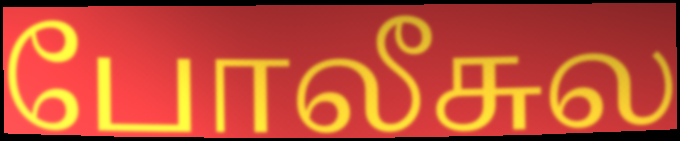
போலீசுல